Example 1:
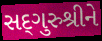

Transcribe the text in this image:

સદ્‌ગુરુશ્રીને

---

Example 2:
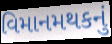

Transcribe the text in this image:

વિમાનમથકનું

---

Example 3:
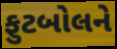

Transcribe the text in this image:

ફુટબોલને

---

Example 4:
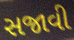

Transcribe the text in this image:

સજાવી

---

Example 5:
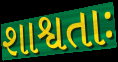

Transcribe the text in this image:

શાશ્વતાઃ